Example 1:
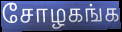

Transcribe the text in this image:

சோழகங்க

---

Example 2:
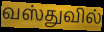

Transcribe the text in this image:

வஸ்துவில்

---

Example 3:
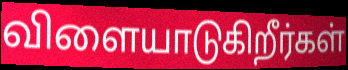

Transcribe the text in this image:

விளையாடுகிறீர்கள்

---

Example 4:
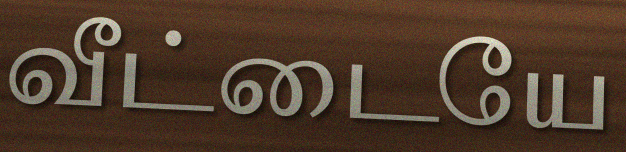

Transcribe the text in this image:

வீட்டையே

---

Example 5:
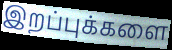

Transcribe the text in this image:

இறப்புக்களை